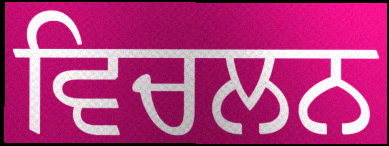
ਵਿਚਲਨ